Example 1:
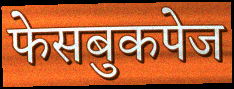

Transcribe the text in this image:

फेसबुकपेज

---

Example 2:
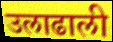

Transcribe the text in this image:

उलाढाली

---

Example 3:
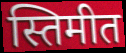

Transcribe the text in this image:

स्तिमीत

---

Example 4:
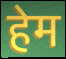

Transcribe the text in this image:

हेम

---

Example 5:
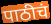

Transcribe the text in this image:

पाठीचं